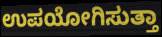
ಉಪಯೋಗಿಸುತ್ತಾ